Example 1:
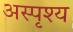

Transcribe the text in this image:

अस्पृश्य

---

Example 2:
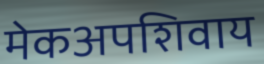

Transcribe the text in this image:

मेकअपशिवाय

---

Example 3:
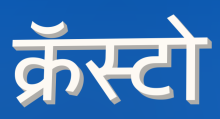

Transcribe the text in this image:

क्रॅस्टो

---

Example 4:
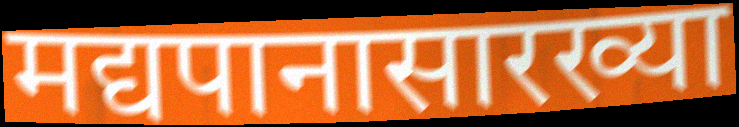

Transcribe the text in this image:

मद्यपानासारख्या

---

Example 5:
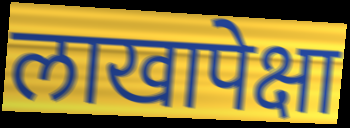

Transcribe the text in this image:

लाखापेक्षा